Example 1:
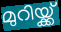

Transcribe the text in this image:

മുറിയ്ക്ക്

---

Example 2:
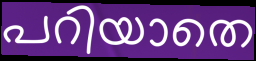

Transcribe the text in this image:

പറിയാതെ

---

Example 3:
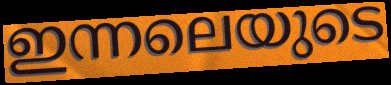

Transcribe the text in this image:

ഇന്നലെയുടെ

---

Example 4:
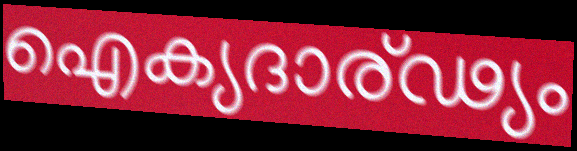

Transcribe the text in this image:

ഐക്യദാര്ഢ്യം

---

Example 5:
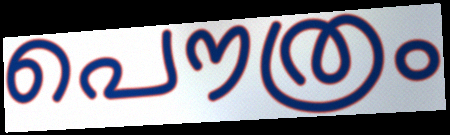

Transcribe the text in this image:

പൌത്രം